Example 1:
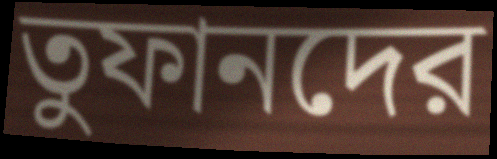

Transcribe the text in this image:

তুফানদের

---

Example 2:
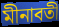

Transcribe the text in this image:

মীনাবতী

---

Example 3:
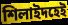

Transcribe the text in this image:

শিলাইদহেই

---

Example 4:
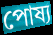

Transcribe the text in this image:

পোষ্য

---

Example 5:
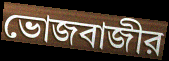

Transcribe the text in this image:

ভোজবাজীর